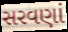
સરવણાં